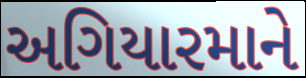
અગિયારમાને